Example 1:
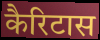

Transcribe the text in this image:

कैरिटास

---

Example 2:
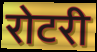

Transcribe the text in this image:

रोटरी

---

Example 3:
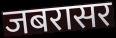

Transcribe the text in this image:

जबरासर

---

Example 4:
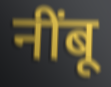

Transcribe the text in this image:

नींबू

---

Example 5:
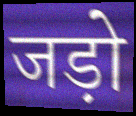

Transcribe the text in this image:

जड़ो